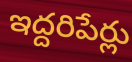
ఇద్దరిపేర్లు